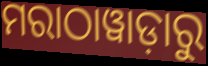
ମରାଠାୱାଡ଼ାରୁ